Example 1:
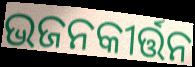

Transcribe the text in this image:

ଭଜନକୀର୍ତ୍ତନ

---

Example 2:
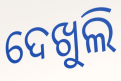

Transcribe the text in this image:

ଦେଖୁଲି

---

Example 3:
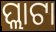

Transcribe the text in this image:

ପ୍ଲାଟା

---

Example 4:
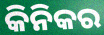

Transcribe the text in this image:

କିନିକର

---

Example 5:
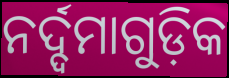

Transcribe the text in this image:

ନର୍ଦ୍ଦମାଗୁଡ଼ିକ